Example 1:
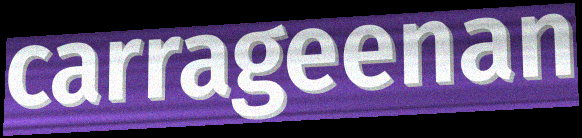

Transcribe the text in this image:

carrageenan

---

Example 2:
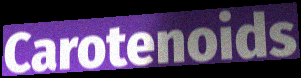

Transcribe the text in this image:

Carotenoids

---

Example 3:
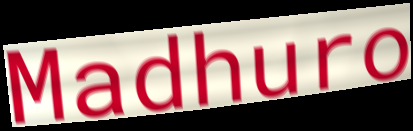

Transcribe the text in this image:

Madhuro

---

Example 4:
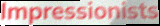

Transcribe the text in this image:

Impressionists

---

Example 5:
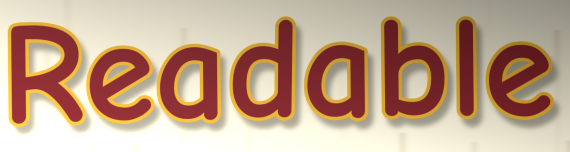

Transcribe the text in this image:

Readable